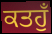
ਕਤਹੁਁ